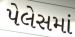
પેલેસમાં